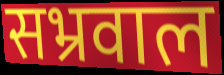
सभ्रवाल